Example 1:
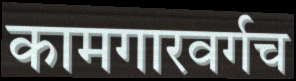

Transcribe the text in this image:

कामगारवर्गच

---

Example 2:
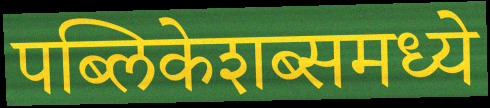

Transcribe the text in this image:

पब्लिकेशब्समध्ये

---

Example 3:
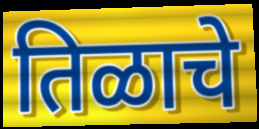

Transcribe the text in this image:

तिळाचे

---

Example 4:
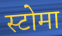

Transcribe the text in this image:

स्टोमा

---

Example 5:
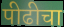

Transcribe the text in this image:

पीढीचा